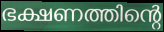
ഭക്ഷണത്തിന്റെ